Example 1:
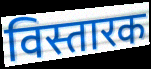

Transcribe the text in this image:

विस्तारक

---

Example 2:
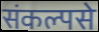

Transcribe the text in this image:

संकल्पसे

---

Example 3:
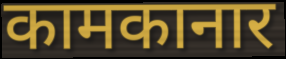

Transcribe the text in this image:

कामकानार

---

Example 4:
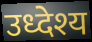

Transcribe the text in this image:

उध्देश्य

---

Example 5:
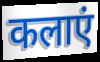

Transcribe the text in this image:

कलाएं